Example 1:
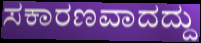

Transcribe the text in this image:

ಸಕಾರಣವಾದದ್ದು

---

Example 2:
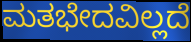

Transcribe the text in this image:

ಮತಭೇದವಿಲ್ಲದೆ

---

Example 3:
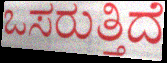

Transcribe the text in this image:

ಒಸರುತ್ತಿದೆ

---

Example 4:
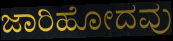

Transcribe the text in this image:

ಜಾರಿಹೋದವು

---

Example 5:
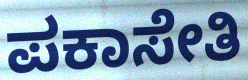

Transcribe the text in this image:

ಪಕಾಸೇತಿ